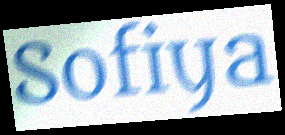
Sofiya